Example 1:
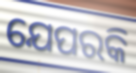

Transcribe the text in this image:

ଯେପରକି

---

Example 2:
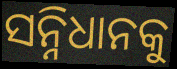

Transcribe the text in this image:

ସନ୍ନିଧାନକୁ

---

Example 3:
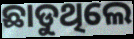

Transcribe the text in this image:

ଛାଡୁଥିଲେ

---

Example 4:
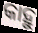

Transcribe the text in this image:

କାହୁ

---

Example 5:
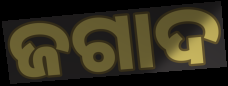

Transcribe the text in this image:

ଜଗାଦ